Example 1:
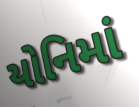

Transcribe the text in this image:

યોનિમાં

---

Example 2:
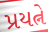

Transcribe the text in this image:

પ્રયત્ને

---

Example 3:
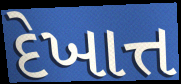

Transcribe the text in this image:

દેખાત્ત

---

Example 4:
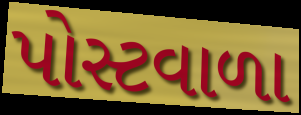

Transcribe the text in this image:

પોસ્ટવાળા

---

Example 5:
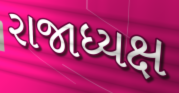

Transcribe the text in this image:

રાજાધ્યક્ષ